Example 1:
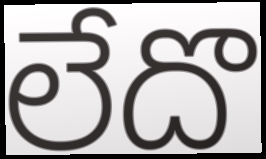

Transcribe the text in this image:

లేదొ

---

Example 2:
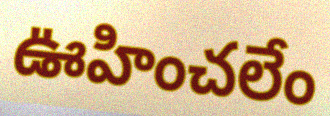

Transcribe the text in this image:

ఊహించలేం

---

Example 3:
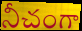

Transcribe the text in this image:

నీచంగా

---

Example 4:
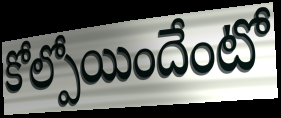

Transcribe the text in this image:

కోల్పోయిందేంటో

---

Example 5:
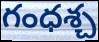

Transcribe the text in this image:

గంధశ్చ